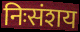
निःसंशय